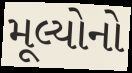
મૂલ્યોનો